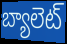
బ్యాలెట్